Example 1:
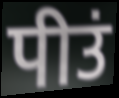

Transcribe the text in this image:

पीउं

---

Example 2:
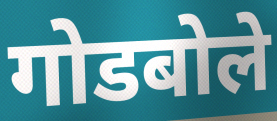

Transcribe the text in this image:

गोडबोले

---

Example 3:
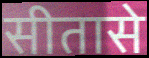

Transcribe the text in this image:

सीतासे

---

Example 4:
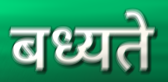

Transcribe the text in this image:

बध्यते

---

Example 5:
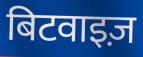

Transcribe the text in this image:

बिटवाइज़